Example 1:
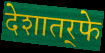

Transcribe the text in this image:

देशातर्फे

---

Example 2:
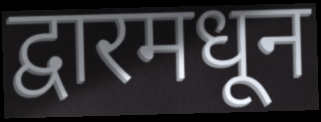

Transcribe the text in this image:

द्वारमधून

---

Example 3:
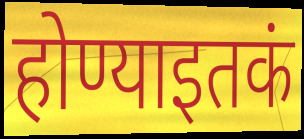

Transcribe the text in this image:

होण्याइतकं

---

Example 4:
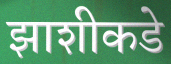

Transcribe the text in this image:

झाशीकडे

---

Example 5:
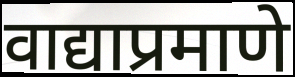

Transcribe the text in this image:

वाद्याप्रमाणे